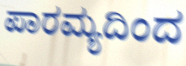
ಪಾರಮ್ಯದಿಂದ